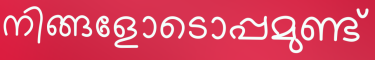
നിങ്ങളോടൊപ്പമുണ്ട്